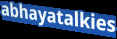
abhayatalkies